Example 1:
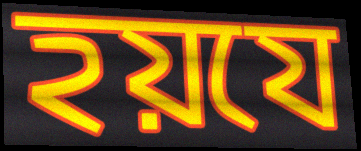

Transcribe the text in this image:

হয়যে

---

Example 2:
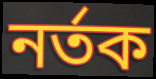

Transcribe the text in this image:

নৰ্তক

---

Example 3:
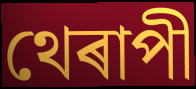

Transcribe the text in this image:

থেৰাপী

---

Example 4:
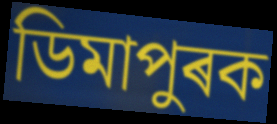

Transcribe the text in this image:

ডিমাপুৰক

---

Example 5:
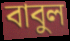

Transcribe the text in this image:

বাবুল